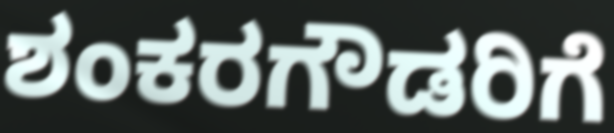
ಶಂಕರಗೌಡರಿಗೆ